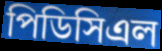
পিডিসিএল